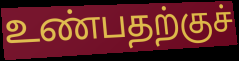
உண்பதற்குச்